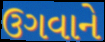
ઉગવાને